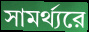
সামর্থ্যরে